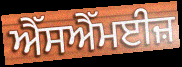
ਐੱਸਐੱਮਈਜ਼